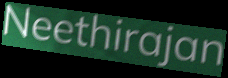
Neethirajan